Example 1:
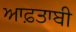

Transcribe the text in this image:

ਆਫ਼ਤਾਬੀ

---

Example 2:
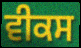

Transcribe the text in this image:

ਵੀਕਸ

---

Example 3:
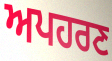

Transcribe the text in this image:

ਅਪਹਰਣ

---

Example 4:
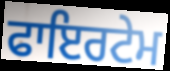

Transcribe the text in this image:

ਫਾਇਰਟੇਮ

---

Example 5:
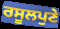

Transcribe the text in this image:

ਰਸੂਲਪੁਣੇ